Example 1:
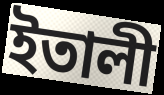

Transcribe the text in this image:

ইতালী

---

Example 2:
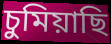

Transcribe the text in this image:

চুমিয়াছি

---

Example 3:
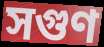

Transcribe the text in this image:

সগুণ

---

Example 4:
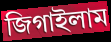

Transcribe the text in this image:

জিগাইলাম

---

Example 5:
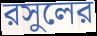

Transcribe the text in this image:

রসুলের